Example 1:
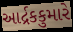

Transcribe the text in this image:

આર્દ્રકકુમારે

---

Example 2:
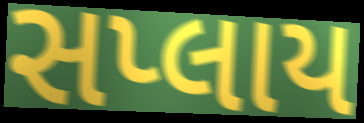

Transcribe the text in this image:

સપ્લાય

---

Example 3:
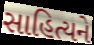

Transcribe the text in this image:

સાહિત્યને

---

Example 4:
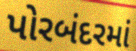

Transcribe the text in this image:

પોરબંદરમાં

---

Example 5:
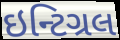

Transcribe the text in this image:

ઇન્ટિગ્રલ